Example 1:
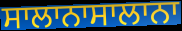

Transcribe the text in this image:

ਸਾਲਾਨਾਸਾਲਾਨਾ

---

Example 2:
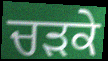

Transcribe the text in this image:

ਚੜਕੇ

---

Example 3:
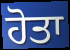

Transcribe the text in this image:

ਹੋਤਾ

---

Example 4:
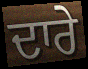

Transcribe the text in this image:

ਦਾਰੇ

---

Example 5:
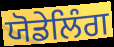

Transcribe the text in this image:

ਯੋਡੇਲਿੰਗ